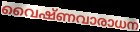
വൈഷ്ണവാരാധന